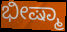
ಭೀಷ್ಮಾ